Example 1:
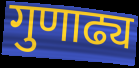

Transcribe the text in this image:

गुणाढ्य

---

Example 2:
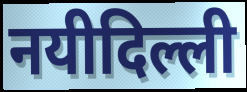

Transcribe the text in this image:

नयीदिल्ली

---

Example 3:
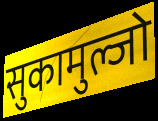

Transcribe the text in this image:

सुकामुल्जो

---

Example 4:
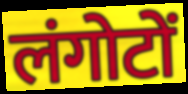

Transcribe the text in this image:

लंगोटों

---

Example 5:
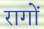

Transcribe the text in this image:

रागों